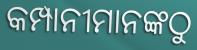
କମ୍ପାନୀମାନଙ୍କଠୁ